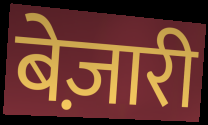
बेज़ारी